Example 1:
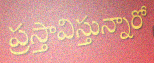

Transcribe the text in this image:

ప్రస్తావిస్తున్నారో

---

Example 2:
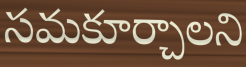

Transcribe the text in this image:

సమకూర్చాలని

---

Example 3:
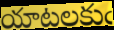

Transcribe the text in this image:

యాటలకుఁ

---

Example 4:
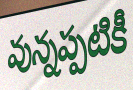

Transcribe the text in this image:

వున్నప్పటికీ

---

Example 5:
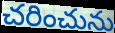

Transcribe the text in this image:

చరించును